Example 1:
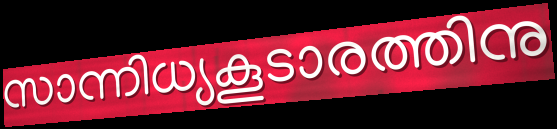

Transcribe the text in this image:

സാന്നിധ്യകൂടാരത്തിനു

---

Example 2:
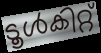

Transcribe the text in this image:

ടൂൾകിറ്റ്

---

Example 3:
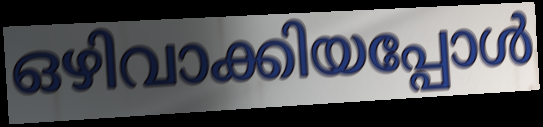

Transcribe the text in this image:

ഒഴിവാക്കിയപ്പോൾ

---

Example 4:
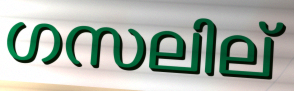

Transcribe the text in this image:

ഗസലില്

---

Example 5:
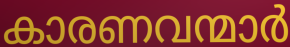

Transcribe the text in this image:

കാരണവന്മാർ